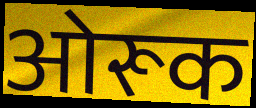
ओरूक